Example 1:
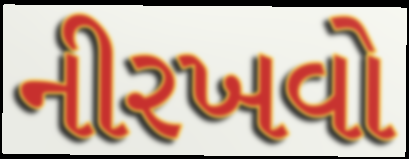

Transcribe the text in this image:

નીરખવો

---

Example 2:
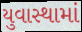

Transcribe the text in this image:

યુવાસ્થામાં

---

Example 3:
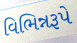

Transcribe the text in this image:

વિભિન્નરૂપે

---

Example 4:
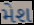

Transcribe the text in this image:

મેશ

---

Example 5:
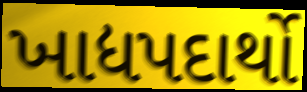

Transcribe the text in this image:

ખાદ્યપદાર્થો